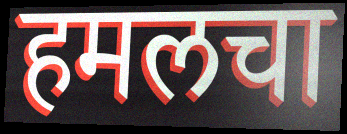
हमलचा